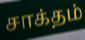
சாக்தம்